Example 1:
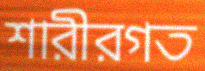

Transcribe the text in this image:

শারীরগত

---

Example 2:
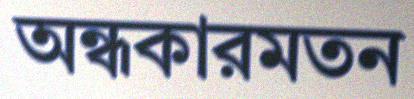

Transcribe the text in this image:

অন্ধকারমতন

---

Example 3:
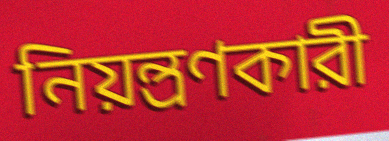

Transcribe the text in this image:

নিয়ন্ত্রণকারী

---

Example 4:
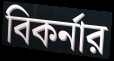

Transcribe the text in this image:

বিকর্নার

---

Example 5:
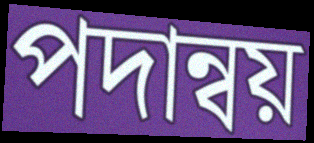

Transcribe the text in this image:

পদান্বয়